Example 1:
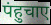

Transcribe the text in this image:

पंहुचाए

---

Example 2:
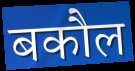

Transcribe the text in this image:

बकौल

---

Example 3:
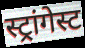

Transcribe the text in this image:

स्ट्रांगेस्ट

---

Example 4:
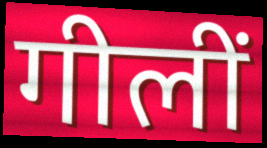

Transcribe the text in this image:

गीलीं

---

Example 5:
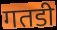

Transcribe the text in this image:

गतडी